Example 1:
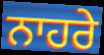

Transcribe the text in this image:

ਨਾਹਰੇ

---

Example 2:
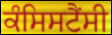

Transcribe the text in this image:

ਕੰਸਿਸਟੈਂਸੀ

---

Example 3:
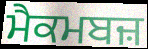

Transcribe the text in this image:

ਮੈਕਮਬਜ਼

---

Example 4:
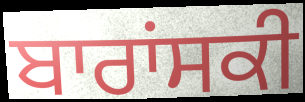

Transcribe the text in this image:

ਬਾਰਾਂਸਕੀ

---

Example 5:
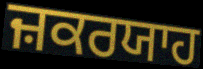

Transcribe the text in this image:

ਜ਼ਕਰਯਾਹ